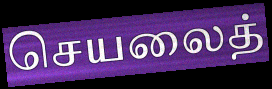
செயலைத்